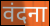
वंदना